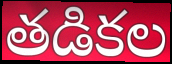
తడికల